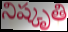
నిష్కృతి